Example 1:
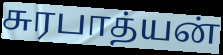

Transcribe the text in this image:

சுரபாத்யன்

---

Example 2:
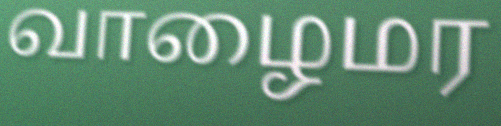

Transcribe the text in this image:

வாழைமர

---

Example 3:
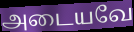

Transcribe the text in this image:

அடையவே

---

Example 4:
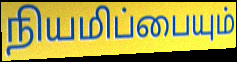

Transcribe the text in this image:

நியமிப்பையும்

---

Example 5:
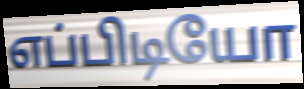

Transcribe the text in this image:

எப்பிடியோ